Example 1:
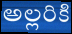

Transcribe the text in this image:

అల్లరికి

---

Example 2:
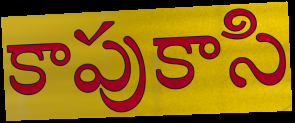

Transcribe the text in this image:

కాపుకాసి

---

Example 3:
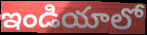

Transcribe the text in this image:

ఇండియాలో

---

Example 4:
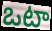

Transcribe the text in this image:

ఒటా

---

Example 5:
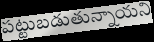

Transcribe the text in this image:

పట్టుబడుతున్నాయని